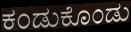
ಕಂಡುಕೊಂಡು